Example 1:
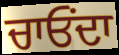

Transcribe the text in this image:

ਚਾਓਂਦਾ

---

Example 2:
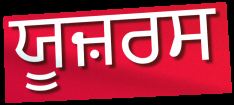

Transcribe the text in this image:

ਯੂਜ਼ਰਸ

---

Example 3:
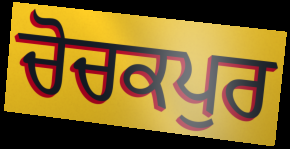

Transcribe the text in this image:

ਚੋਚਕਪੁਰ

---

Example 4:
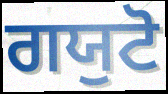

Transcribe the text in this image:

ਗਯੁਟੋ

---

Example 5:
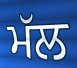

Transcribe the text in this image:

ਮੱਲ